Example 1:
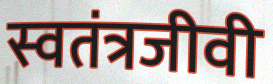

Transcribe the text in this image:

स्वतंत्रजीवी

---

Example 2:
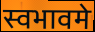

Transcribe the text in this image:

स्वभावमे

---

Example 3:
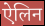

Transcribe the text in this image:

ऐलिन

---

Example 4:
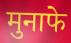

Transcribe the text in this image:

मुनाफे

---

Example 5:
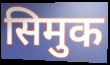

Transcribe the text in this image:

सिमुक